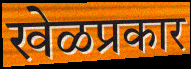
खेळप्रकार